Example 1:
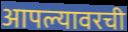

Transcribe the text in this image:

आपल्यावरची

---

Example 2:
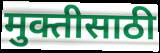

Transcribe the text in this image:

मुक्तीसाठी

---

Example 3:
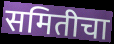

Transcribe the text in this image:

समितीचा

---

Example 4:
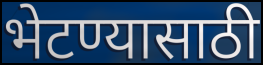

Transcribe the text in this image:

भेटण्यासाठी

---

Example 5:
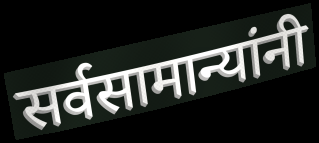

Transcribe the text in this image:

सर्वसामान्यांनी